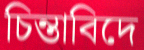
চিন্তাবিদে